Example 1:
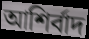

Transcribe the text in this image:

আশির্বাদ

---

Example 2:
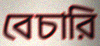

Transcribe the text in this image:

বেচারি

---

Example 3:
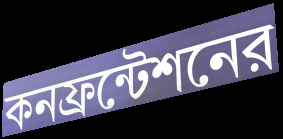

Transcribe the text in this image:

কনফ্রন্টেশনের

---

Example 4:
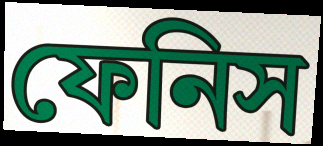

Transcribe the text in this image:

ফেনিস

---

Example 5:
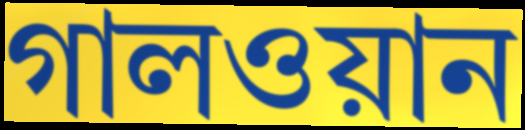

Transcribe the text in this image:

গালওয়ান